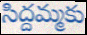
సిద్దమ్మకు